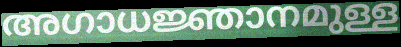
അഗാധജ്ഞാനമുള്ള